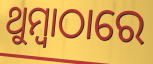
ଥୁମ୍ବାଠାରେ